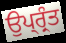
ਉਪ੍ਰ੍ਰੰਤ